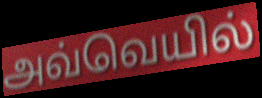
அவ்வெயில்